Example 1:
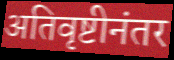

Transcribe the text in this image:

अतिवृष्टीनंतर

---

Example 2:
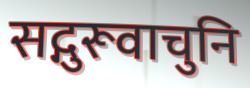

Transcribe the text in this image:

सद्गुरूवाचुनि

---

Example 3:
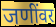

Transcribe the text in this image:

जणींवर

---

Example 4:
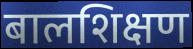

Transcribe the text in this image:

बालशिक्षण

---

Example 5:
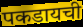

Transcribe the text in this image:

पकडायची